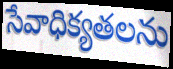
సేవాధిక్యతలను